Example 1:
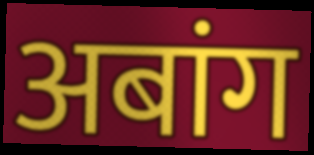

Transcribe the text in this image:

अबांग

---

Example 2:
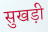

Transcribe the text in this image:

सुखड़ी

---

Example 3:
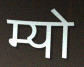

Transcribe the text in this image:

म्यो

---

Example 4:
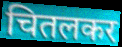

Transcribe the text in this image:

चितलकर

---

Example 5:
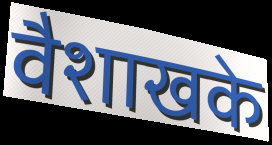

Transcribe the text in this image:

वैशाखके